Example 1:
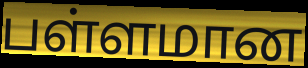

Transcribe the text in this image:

பள்ளமான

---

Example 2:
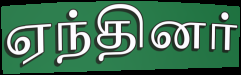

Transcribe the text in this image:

ஏந்தினர்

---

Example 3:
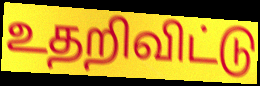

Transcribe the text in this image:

உதறிவிட்டு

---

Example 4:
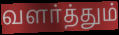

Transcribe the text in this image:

வளர்த்தும்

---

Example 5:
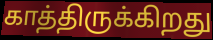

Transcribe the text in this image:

காத்திருக்கிறது